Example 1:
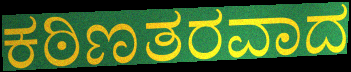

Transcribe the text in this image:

ಕಠಿಣತರವಾದ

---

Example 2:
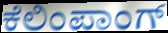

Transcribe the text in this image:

ಕೆಲಿಂಪಾಂಗ್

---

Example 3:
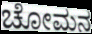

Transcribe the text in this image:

ಚೋಮನ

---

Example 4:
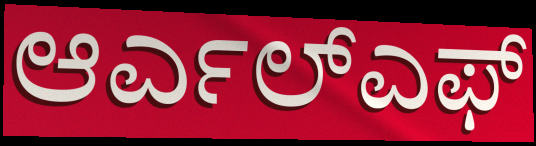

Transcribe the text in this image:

ಆರ್ಎಲ್ಎಫ್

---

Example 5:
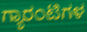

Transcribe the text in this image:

ಗ್ಯಾರಂಟಿಗಳ